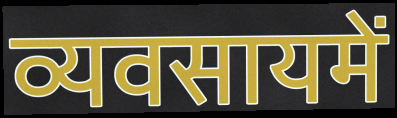
व्यवसायमें